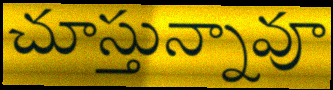
చూస్తున్నావూ